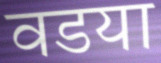
वडया